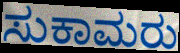
ಸುಕಾಮರು